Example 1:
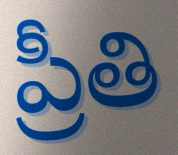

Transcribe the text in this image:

ప్రీతి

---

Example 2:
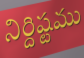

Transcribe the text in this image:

నిర్దిష్టము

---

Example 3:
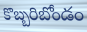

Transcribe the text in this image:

కొబ్బరిబోండం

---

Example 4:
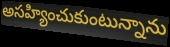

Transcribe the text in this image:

అసహ్యించుకుంటున్నాను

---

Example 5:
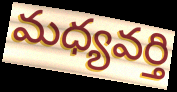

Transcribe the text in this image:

మధ్యవర్తి